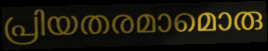
പ്രിയതരമാമൊരു